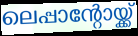
ലെപ്പാന്റോയ്ക്ക്